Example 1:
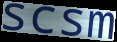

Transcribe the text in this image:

scsm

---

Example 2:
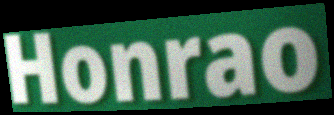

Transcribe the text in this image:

Honrao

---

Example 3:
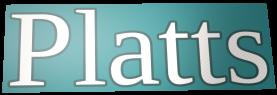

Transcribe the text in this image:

Platts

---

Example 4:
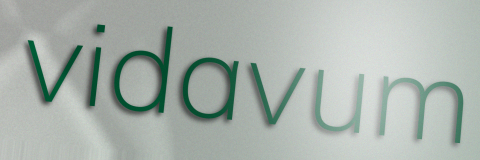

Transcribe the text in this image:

vidavum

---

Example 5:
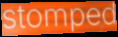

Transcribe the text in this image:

stomped